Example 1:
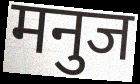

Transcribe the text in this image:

मनुज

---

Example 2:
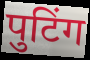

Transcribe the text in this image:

पुटिंग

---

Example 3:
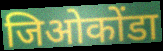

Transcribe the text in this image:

जिओकोंडा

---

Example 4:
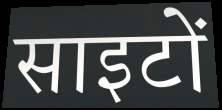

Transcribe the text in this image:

साइटों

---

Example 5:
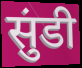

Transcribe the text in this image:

सुंडी